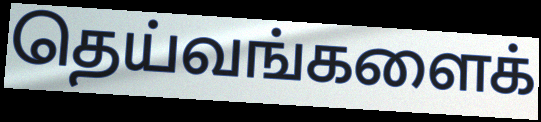
தெய்வங்களைக்